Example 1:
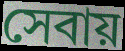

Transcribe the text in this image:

সেবায়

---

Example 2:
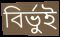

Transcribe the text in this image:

বির্ভুই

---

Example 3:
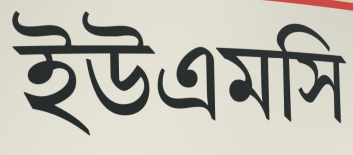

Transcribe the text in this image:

ইউএমসি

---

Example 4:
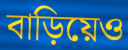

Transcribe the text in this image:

বাড়িয়েও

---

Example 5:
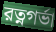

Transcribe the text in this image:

রত্নগর্ভা